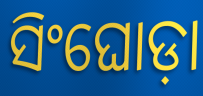
ସିଂଘୋଡ଼ା